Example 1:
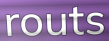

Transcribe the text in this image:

routs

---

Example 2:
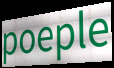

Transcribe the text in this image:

poeple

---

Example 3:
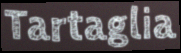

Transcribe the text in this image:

Tartaglia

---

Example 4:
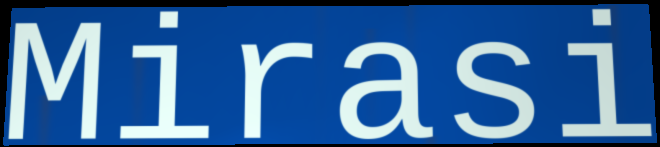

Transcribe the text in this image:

Mirasi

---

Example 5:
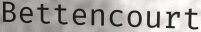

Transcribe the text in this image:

Bettencourt